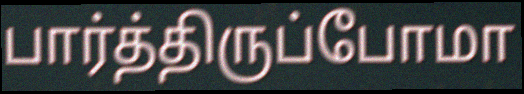
பார்த்திருப்போமா